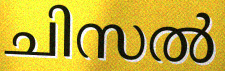
ചിസൽ